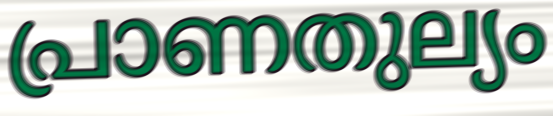
പ്രാണതുല്യം